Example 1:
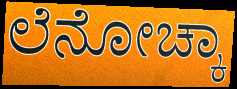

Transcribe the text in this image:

ಲೆನೋಚ್ಕಾ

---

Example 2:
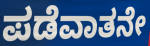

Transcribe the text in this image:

ಪಡೆವಾತನೇ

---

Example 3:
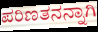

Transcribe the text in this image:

ಪರಿಣತನನ್ನಾಗಿ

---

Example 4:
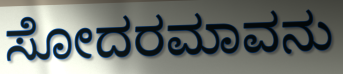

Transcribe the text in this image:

ಸೋದರಮಾವನು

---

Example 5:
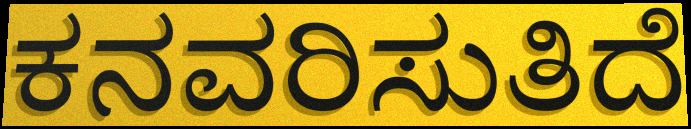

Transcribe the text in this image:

ಕನವರಿಸುತಿದೆ